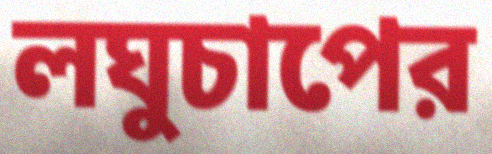
লঘুচাপের